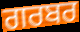
ਗਰਬਰ